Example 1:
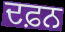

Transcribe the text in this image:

ਦਫ਼ਨ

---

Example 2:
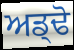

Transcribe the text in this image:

ਅਡ੍ਢੋ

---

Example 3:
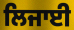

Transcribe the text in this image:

ਲਿਜਾਈ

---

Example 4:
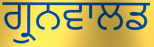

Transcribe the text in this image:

ਗ੍ਰੁਨਵਾਲਡ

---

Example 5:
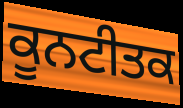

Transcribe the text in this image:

ਕੂਨਟੀਤਕ